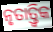
ନୃତାତ୍ତ୍ବିକ